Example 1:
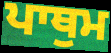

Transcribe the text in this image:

ਪਾਥੁਮ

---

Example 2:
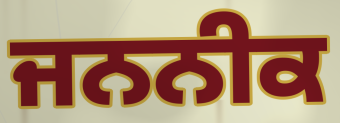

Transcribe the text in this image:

ਜਨਨੀਕ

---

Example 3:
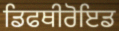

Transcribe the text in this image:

ਡਿਫਥੀਰੋਇਡ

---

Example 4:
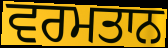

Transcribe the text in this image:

ਵਰਮਤਾਨ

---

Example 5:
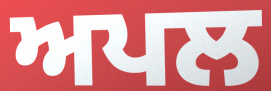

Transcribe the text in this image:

ਅਪਲ